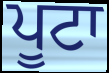
ਪੂਟਾ